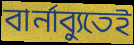
বার্নাব্যুতেই